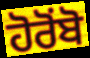
ਹੋਰੋਂਬੋ